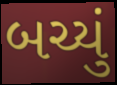
બચ્યું